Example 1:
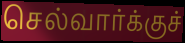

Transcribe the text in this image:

செல்வார்க்குச்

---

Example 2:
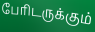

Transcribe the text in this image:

பேரிடருக்கும்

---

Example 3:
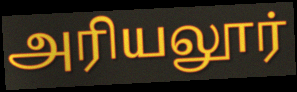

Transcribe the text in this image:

அரியலூர்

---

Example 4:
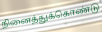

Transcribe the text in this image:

நினைத்துக்கொண்டு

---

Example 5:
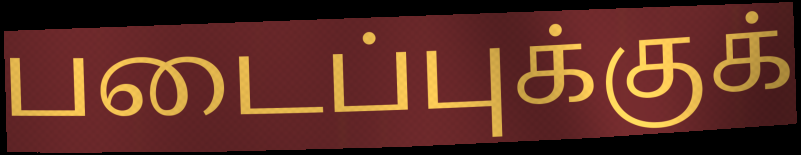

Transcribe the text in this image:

படைப்புக்குக்